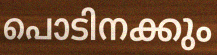
പൊടിനക്കും